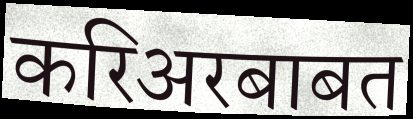
करिअरबाबत